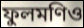
ফুলমণিও